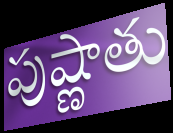
పుష్ణాతు